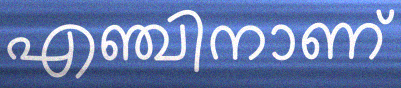
എഞ്ചിനാണ്